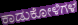
ಕಾಡುಕೋಳಿಗಳ